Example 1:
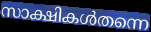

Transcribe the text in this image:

സാക്ഷികൾതന്നെ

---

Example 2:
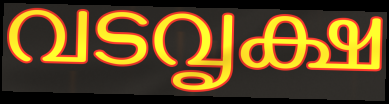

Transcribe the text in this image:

വടവൃക്ഷ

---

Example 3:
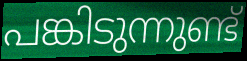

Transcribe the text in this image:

പങ്കിടുന്നുണ്ട്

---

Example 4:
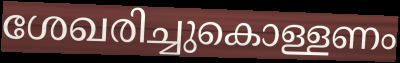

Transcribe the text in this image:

ശേഖരിച്ചുകൊള്ളണം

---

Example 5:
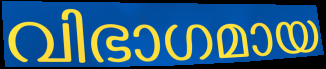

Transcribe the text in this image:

വിഭാഗമായ